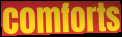
comforts